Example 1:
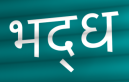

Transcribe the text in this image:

भद्ध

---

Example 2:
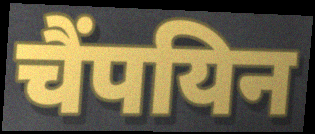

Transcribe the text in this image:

चैंपयिन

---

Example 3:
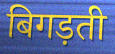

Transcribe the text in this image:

बिगड़ती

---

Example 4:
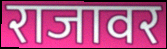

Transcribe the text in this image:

राजावर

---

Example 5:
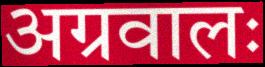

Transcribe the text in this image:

अग्रवालः